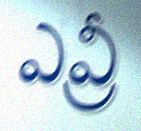
ఎవ్రీ